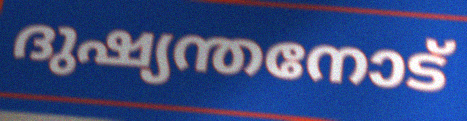
ദുഷ്യന്തനോട്